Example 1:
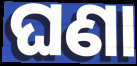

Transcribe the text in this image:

ଘଣା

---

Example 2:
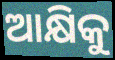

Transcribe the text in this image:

ଆକ୍ଷିକୁ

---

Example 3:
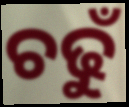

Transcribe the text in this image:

ଚଢୁଁ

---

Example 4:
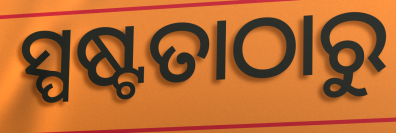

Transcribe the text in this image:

ସ୍ପଷ୍ଟତାଠାରୁ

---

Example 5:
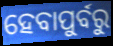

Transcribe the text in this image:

ହେବାପୁର୍ବରୁ